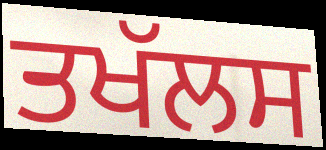
ਤਖੱਲਸ